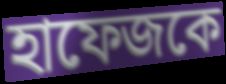
হাফেজকে